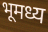
भूमध्य